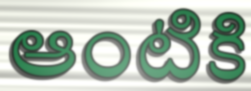
ఆంటికి